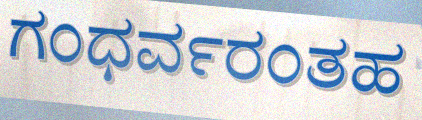
ಗಂಧರ್ವರಂತಹ